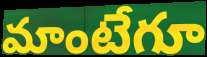
మాంటేగూ